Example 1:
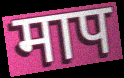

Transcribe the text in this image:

माप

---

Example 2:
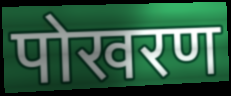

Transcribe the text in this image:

पोखरण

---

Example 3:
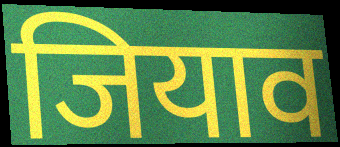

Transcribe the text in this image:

जियाव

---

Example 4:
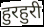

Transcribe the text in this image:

हुरहुरी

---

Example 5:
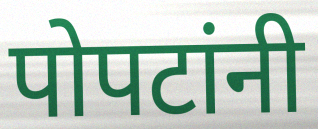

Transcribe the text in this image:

पोपटांनी